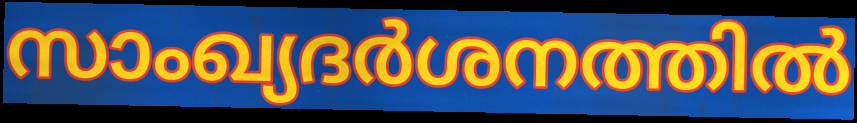
സാംഖ്യദർശനത്തിൽ